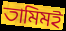
তামিমই